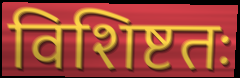
विशिष्टतः